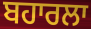
ਬਹਾਰਲਾ